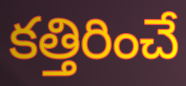
కత్తిరించే